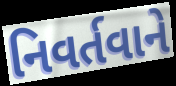
નિવર્તવાને